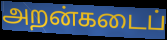
அறன்கடைப்